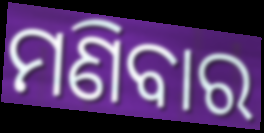
ମଣିବାର